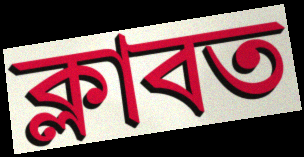
ক্লাবত